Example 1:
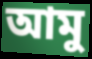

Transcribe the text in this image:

আমু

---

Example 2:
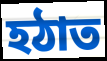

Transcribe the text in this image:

হঠাত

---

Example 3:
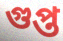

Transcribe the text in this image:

গুপ্ত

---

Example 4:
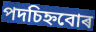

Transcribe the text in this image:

পদচিহ্নবোৰ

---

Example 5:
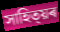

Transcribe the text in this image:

সাহিত্য়ৰ